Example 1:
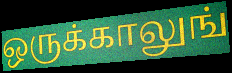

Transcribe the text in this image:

ஒருக்காலுங்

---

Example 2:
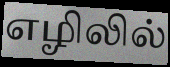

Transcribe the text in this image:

எழிலில்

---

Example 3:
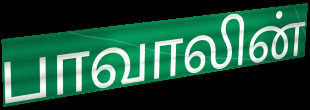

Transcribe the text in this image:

பாவாலின்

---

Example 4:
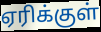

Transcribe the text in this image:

ஏரிக்குள்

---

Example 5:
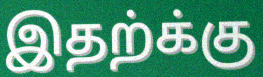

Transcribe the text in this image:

இதற்க்கு